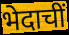
भेदाचीं